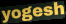
yogesh